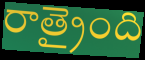
రాత్రైంది